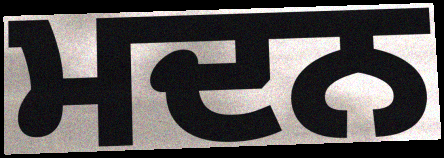
ਮਦਨ